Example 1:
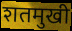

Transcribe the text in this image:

शतमुखी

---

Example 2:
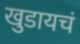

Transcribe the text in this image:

खुडायचं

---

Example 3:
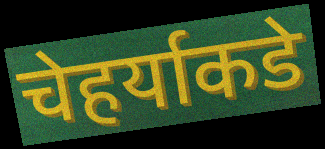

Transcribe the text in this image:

चेहर्याकडे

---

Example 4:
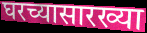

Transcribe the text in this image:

घरच्यासारख्या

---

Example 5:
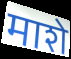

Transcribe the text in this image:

माशे